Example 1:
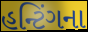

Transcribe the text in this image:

હન્ટિંગના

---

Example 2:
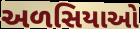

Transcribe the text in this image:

અળસિયાઓ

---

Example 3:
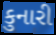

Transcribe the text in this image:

કુનારી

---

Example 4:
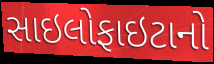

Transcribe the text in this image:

સાઇલોફાઇટાનો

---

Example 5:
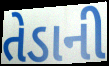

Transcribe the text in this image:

તેડાની